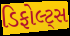
ડિફોલ્ટ્સ